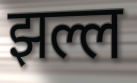
झल्ल